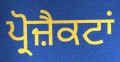
ਪ੍ਰੋਜ਼ੈਕਟਾਂ